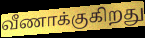
வீணாக்குகிறது